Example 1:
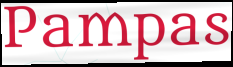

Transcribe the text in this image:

Pampas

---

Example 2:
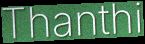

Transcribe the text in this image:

Thanthi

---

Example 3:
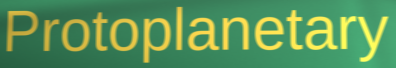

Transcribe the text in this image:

Protoplanetary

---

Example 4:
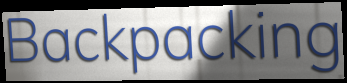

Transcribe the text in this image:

Backpacking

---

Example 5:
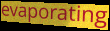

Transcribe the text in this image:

evaporating